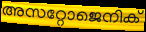
അസറ്റോജെനിക്